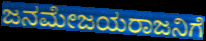
ಜನಮೇಜಯರಾಜನಿಗೆ